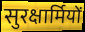
सुरक्षार्मियों